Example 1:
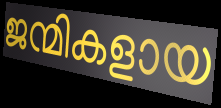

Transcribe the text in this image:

ജന്മികളായ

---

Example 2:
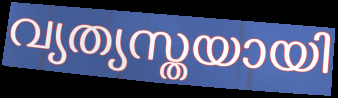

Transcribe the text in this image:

വ്യത്യസ്തയായി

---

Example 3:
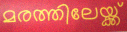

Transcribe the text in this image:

മരത്തിലേയ്ക്ക്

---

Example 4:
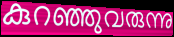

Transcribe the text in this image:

കുറഞ്ഞുവരുന്നു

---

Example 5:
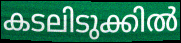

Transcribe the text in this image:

കടലിടുക്കിൽ